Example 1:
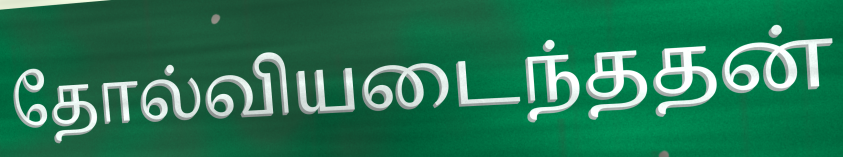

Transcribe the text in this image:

தோல்வியடைந்ததன்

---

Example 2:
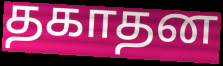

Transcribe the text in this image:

தகாதன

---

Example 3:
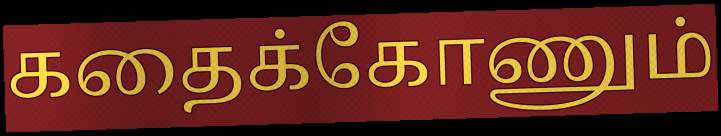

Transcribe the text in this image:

கதைக்கோணும்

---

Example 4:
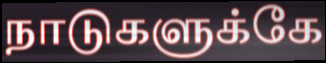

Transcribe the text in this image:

நாடுகளுக்கே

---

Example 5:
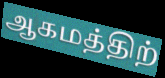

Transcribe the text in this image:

ஆகமத்திற்